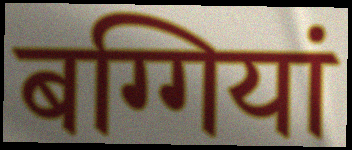
बग्गियां